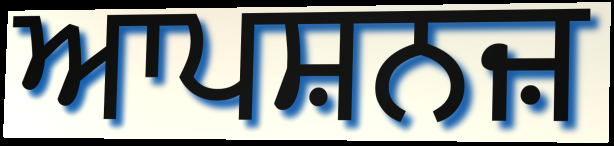
ਆਪਸ਼ਨਜ਼